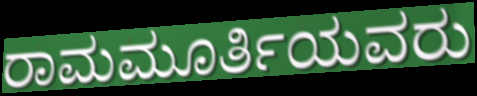
ರಾಮಮೂರ್ತಿಯವರು